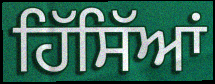
ਹਿੱਸਿੱਆਂ